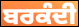
ਬਰਕੰਦੀ